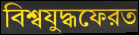
বিশ্বযুদ্ধফেরত